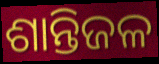
ଶାନ୍ତିଜଳ